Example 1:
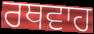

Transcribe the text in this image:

ਰਥਵਾਹ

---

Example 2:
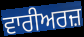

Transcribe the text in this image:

ਵਾਰੀਅਰਜ਼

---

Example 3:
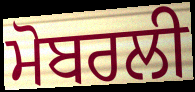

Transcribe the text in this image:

ਮੋਬਰਲੀ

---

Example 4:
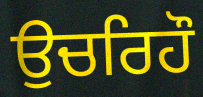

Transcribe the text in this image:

ਉਚਰਿਹੌ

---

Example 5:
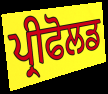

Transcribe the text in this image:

ਪ੍ਰੀਫੋਲਡ